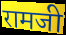
रामजी